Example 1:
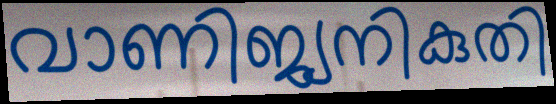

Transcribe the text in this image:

വാണിജ്യനികുതി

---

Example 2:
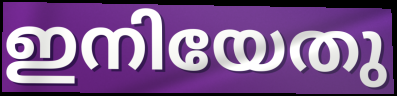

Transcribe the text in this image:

ഇനിയേതു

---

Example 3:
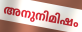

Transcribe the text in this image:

അനുനിമിഷം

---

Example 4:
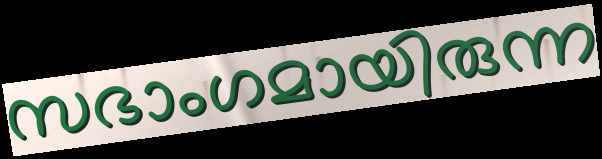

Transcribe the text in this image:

സഭാംഗമായിരുന്ന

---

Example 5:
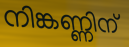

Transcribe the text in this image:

നിങ്കണ്ണിന്